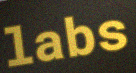
labs